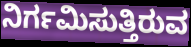
ನಿರ್ಗಮಿಸುತ್ತಿರುವ